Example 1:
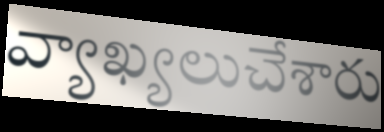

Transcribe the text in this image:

వ్యాఖ్యలుచేశారు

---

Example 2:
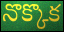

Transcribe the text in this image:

నొక్కొక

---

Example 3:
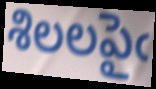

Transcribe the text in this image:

శిలలపైఁ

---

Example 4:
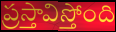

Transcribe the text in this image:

ప్రస్తావిస్తోంది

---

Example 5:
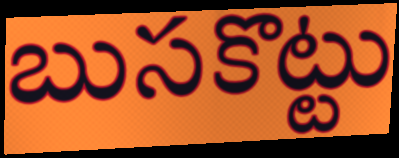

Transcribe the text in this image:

బుసకొట్టు